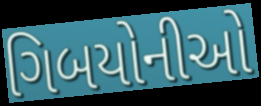
ગિબયોનીઓ